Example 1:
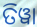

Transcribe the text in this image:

ତିୱା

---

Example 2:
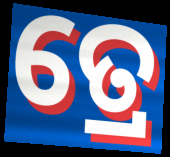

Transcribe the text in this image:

ତ୍ରେ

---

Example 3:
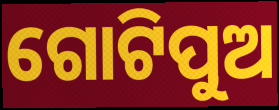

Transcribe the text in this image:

ଗୋଟିପୁଅ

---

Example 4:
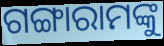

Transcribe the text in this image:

ଗଙ୍ଗାରାମଙ୍କୁ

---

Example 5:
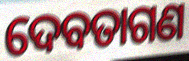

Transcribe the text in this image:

ଦେବତାଗଣ